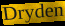
Dryden